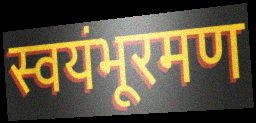
स्वयंभूरमण